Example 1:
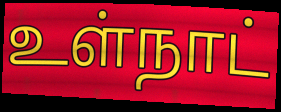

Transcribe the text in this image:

உள்நாட்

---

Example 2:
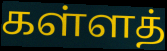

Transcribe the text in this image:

கள்ளத்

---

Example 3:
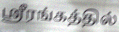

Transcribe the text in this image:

ஸ்ரீரங்கத்தில்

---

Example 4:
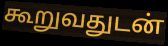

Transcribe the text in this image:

கூறுவதுடன்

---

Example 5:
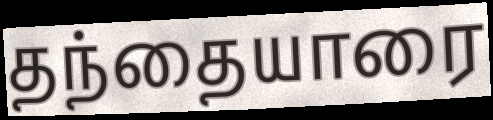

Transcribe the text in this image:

தந்தையாரை